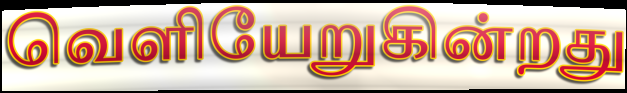
வெளியேறுகின்றது